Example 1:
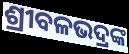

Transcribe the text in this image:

ଶ୍ରୀବଳଭଦ୍ରଙ୍କ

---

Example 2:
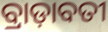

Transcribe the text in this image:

ବ୍ରାଡ଼ାବତୀ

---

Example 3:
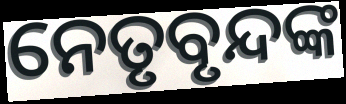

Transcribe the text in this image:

ନେତୃବୃନ୍ଦଙ୍କ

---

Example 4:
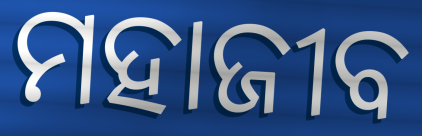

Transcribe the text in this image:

ମହାଜୀବ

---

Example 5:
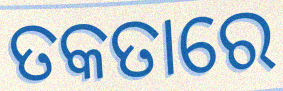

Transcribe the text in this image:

ତକତାରେ